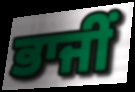
ਭਾਜੀਂ